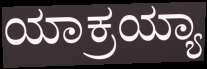
ಯಾಕ್ರಯ್ಯಾ